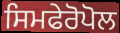
ਸਿਮਫੇਰੋਪੋਲ